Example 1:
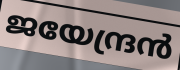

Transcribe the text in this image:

ജയേന്ദ്രൻ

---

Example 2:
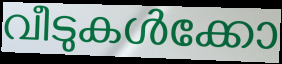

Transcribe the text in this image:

വീടുകൾക്കോ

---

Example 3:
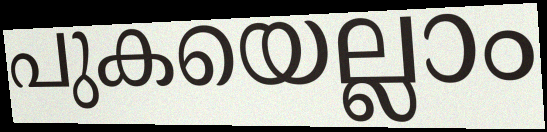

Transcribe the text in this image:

പുകയെല്ലാം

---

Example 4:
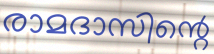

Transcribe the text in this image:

രാമദാസിന്റെ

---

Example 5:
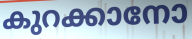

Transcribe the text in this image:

കുറക്കാനോ